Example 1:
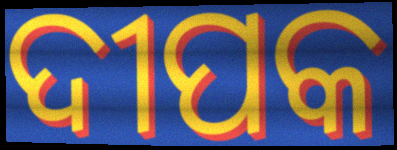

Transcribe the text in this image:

ଦୀପକ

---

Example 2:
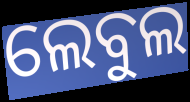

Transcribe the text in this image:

ଲେବୁଲ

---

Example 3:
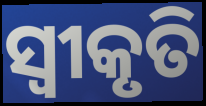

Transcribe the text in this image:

ସ୍ବୀକୃତି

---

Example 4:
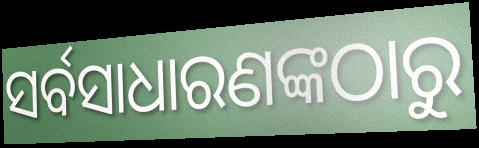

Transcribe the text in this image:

ସର୍ବସାଧାରଣଙ୍କଠାରୁ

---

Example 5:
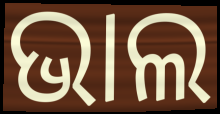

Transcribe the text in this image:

ଭାଲ